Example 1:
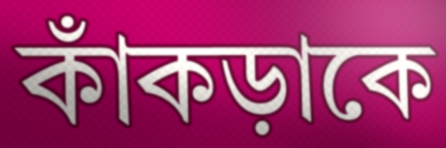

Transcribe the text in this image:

কাঁকড়াকে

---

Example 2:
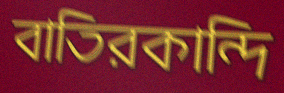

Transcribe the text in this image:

বাতিরকান্দি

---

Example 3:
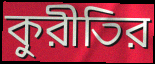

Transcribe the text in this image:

কুরীতির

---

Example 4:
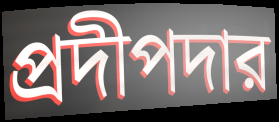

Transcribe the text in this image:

প্রদীপদার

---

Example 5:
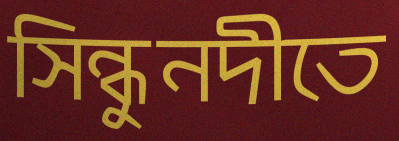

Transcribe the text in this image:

সিন্ধুনদীতে